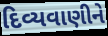
દિવ્યવાણીને